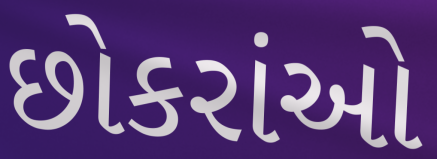
છોકરાંઓ